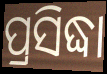
ପ୍ରସିଦ୍ଧା